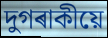
দুগৰাকীয়ে